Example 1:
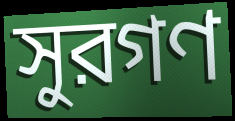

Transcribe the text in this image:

সুরগণ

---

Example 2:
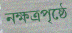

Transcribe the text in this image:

নক্ষত্রপৃষ্ঠে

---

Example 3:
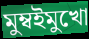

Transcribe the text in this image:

মুম্বইমুখো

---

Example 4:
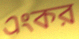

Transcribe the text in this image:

এংকর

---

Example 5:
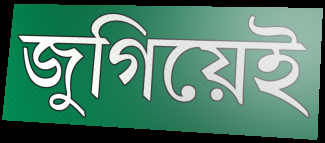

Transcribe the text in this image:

জুগিয়েই